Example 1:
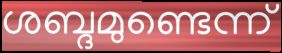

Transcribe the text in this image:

ശബ്ദമുണ്ടെന്ന്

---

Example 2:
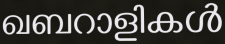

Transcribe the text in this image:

ഖബറാളികൾ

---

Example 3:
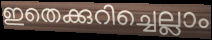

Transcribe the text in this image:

ഇതെക്കുറിച്ചെല്ലാം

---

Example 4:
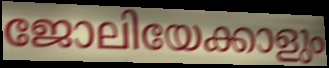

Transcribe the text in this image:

ജോലിയേക്കാളും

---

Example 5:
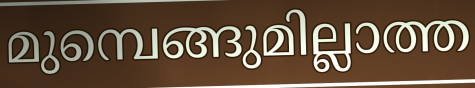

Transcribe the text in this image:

മുമ്പെങ്ങുമില്ലാത്ത